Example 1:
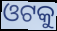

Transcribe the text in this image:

ଓଟକୁ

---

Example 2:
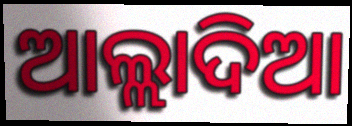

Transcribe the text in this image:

ଆଲ୍ଲାଦିଆ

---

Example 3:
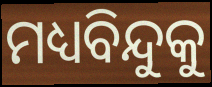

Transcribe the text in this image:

ମଧ୍ୟବିନ୍ଦୁକୁ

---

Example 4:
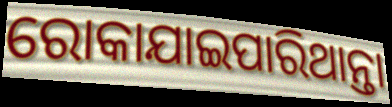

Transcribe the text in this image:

ରୋକାଯାଇପାରିଥାନ୍ତା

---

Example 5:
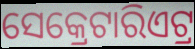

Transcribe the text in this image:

ସେକ୍ରେଟାରିଏଟ୍ର